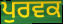
ਪੁਰਵਕ